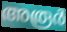
അരൂർ